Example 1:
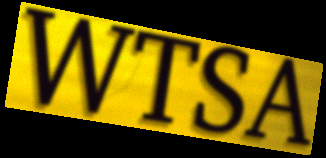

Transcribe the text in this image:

WTSA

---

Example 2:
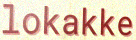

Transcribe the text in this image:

lokakke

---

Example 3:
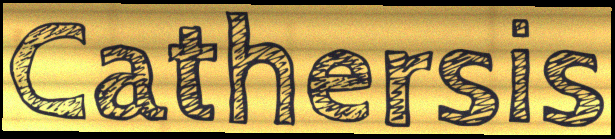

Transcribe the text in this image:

Cathersis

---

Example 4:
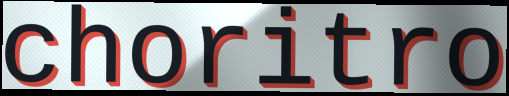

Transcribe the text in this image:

choritro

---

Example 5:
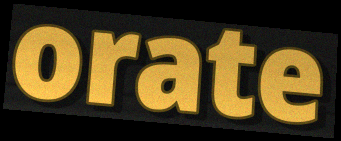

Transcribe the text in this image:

orate